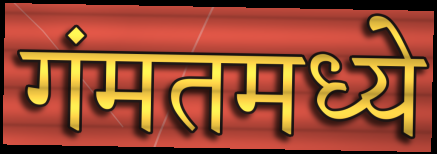
गंमतमध्ये